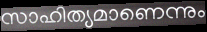
സാഹിത്യമാണെന്നും